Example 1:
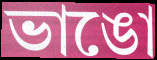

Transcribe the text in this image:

ভাঙো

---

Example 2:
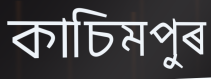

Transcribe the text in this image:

কাচিমপুৰ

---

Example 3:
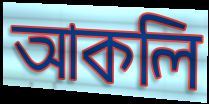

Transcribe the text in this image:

আকলি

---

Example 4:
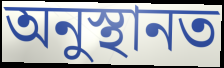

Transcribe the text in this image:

অনুস্থানত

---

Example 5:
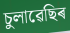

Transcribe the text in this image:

চুলাৱেছিৰ